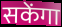
सकेंगा